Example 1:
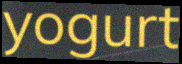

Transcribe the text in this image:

yogurt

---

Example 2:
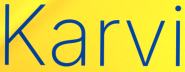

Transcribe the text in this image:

Karvi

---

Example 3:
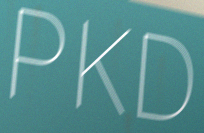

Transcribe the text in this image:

PKD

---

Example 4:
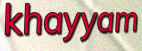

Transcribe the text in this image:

khayyam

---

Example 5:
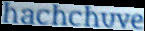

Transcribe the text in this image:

hachchuve